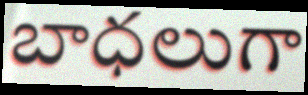
బాధలుగా